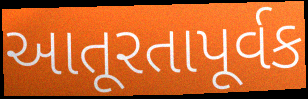
આતૂરતાપૂર્વક